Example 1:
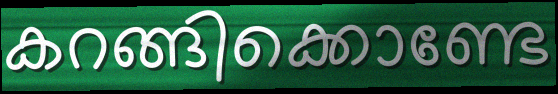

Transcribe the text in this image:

കറങ്ങിക്കൊണ്ടേ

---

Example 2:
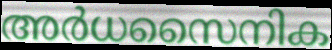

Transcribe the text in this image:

അർധസൈനിക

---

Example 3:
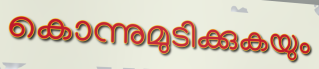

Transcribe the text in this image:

കൊന്നുമുടിക്കുകയും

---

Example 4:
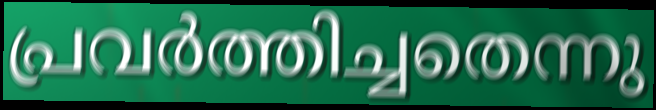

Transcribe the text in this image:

പ്രവർത്തിച്ചതെന്നു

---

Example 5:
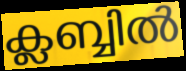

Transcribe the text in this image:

ക്ലബ്ബിൽ